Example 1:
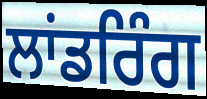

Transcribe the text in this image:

ਲਾਂਡਰਿੰਗ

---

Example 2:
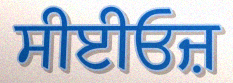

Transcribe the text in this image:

ਸੀਈਓਜ਼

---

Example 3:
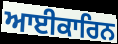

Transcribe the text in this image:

ਆਈਕਾਰਿਨ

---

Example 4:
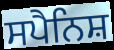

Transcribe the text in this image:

ਸਪੈਨਿਸ਼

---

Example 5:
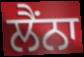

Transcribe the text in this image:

ਲੈਂਨਾ